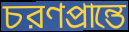
চরণপ্রান্তে